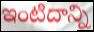
ఇంటిదాన్ని